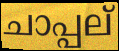
ചാപ്പല്